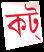
কট্